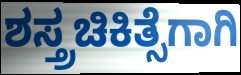
ಶಸ್ತ್ರಚಿಕಿತ್ಸೆಗಾಗಿ